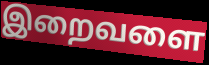
இறைவளை